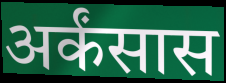
अर्कंसास